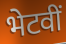
भेटवीं